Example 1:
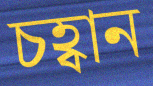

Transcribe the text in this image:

চহ্বান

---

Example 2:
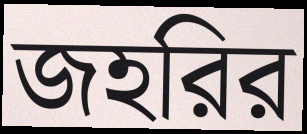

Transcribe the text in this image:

জহরির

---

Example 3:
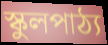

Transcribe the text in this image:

স্কুলপাঠ্য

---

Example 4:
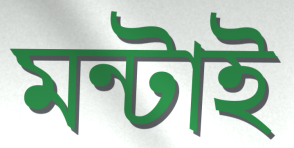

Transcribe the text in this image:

মন্টাই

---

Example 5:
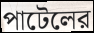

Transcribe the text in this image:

পাটেলের